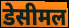
डेसीमल